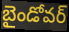
బైండోవర్